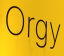
Orgy